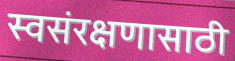
स्वसंरक्षणासाठी